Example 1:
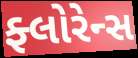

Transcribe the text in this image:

ફ્લોરેન્સ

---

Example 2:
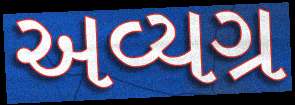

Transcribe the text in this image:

અવ્યગ્ર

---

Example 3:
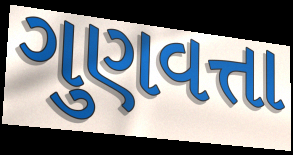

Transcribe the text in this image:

ગુણવત્તા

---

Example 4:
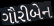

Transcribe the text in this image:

ગૌરીબેન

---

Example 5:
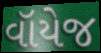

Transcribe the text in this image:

વૉયેજ